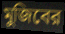
মুজিবের